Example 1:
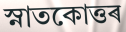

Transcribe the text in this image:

স্নাতকোত্তৰ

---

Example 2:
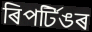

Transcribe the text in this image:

ৰিপৰ্টিঙৰ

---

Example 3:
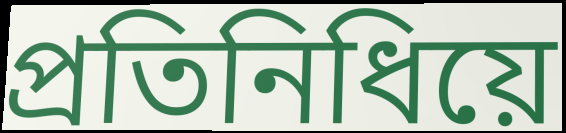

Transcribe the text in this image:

প্ৰতিনিধিয়ে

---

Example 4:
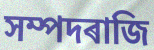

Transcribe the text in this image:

সম্পদৰাজি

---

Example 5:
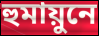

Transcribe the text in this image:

হুমায়ুনে